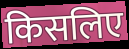
किसलिए